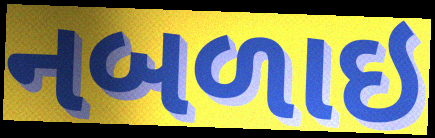
નબળાઇ